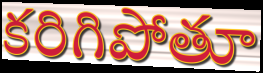
కరిగిపోతూ